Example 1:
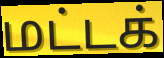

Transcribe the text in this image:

மட்டக்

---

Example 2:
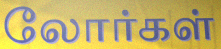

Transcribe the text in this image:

லோர்கள்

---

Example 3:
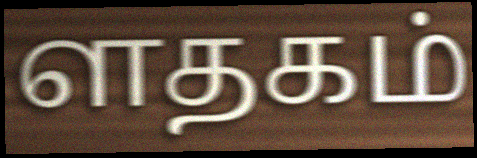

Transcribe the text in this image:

ளதகம்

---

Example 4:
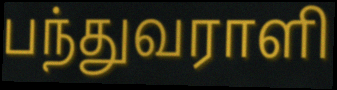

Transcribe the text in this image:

பந்துவராளி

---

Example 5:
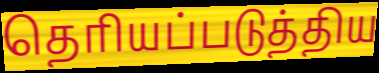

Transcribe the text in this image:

தெரியப்படுத்திய